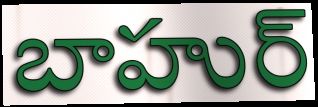
బాహుర్